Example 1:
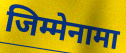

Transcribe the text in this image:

जिम्मेनामा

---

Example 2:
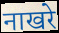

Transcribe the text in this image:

नाखरे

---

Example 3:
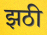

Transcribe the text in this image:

झठी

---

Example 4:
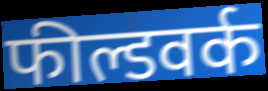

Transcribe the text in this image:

फील्डवर्क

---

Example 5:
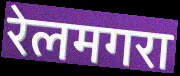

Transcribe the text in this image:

रेलमगरा